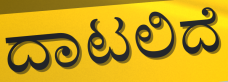
ದಾಟಲಿದೆ